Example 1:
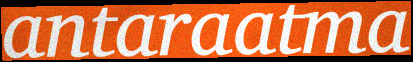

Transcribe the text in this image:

antaraatma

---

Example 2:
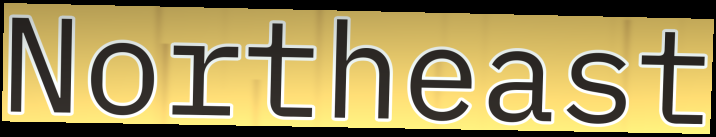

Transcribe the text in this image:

Northeast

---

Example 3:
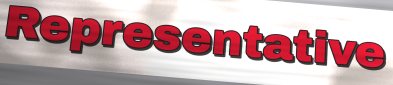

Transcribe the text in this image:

Representative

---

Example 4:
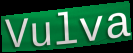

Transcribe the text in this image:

Vulva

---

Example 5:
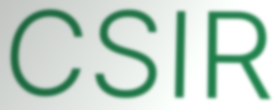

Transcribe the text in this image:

CSIR